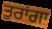
ਤੁਰਾਂਗਾ